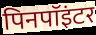
पिनपॉइंटर